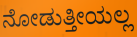
ನೋಡುತ್ತೀಯಲ್ಲ